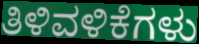
ತಿಳಿವಳಿಕೆಗಳು